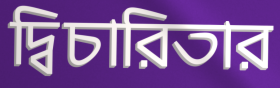
দ্বিচারিতার